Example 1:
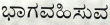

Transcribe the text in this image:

ಭಾಗವಹಿಸುವ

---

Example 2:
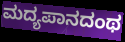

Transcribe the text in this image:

ಮದ್ಯಪಾನದಂಥ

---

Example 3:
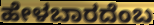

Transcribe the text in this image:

ಹೇಳಬಾರದೆಂಬ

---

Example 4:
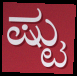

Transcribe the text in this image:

ಷ್ಟು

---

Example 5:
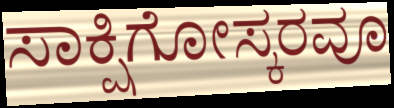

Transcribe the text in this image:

ಸಾಕ್ಷಿಗೋಸ್ಕರವೂ